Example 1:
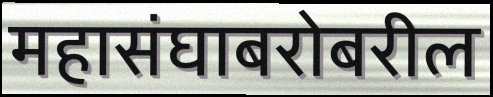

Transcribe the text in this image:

महासंघाबरोबरील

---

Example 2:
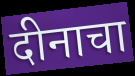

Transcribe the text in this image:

दीनाचा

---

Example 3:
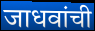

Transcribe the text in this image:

जाधवांची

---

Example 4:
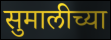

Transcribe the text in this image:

सुमालीच्या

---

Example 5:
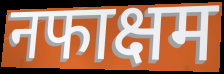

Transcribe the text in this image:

नफाक्षम